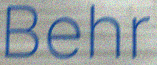
Behr